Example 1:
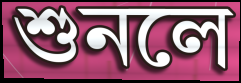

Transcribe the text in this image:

শুনলে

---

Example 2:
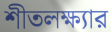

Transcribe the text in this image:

শীতলক্ষ্যার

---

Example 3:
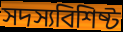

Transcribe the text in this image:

সদস্যবিশিষ্ট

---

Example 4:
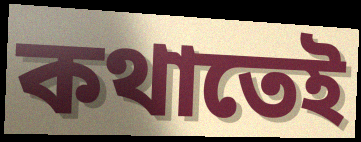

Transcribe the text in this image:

কথাতেই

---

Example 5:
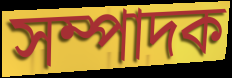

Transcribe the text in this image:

সম্পাদক